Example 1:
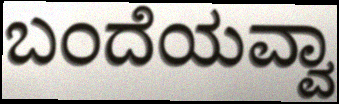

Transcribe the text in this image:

ಬಂದೆಯವ್ವಾ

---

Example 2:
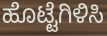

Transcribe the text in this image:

ಹೊಟ್ಟೆಗಿಳಿಸಿ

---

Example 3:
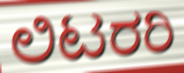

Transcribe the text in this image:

ಲಿಟರರಿ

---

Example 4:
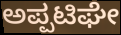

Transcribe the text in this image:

ಅಪ್ಪಟಿಘೇ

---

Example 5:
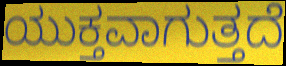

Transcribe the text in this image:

ಯುಕ್ತವಾಗುತ್ತದೆ